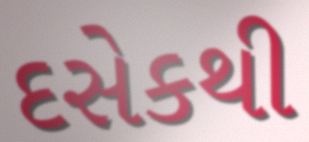
દસેકથી